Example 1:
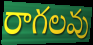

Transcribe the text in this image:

రాగలవు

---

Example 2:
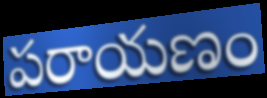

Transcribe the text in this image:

పరాయణం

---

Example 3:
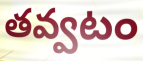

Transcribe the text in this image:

తవ్వటం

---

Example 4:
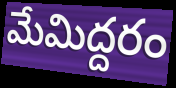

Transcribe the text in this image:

మేమిద్దరం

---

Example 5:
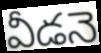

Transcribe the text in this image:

వీడనె